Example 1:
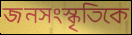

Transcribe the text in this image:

জনসংস্কৃতিকে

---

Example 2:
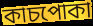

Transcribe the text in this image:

কাচপোকা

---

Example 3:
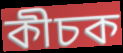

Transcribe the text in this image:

কীচক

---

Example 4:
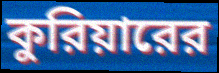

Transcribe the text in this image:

কুরিয়ারের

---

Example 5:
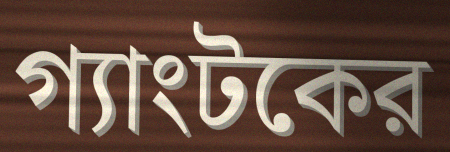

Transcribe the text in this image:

গ্যাংটকের